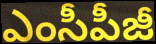
ఎంసీపీజీ